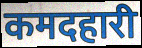
कमदहारी